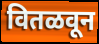
वितळवून